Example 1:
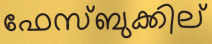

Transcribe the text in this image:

ഫേസ്ബുക്കില്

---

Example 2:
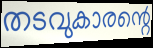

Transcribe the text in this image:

തടവുകാരന്റെ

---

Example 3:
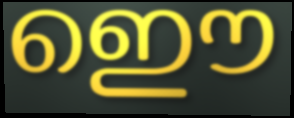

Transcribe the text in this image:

ഇൌ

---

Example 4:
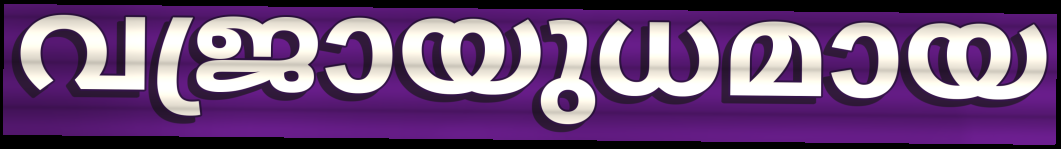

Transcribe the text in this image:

വജ്രായുധമായ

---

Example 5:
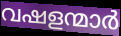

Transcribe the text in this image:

വഷളന്മാർ